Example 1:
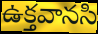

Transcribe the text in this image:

ఉక్తవానసి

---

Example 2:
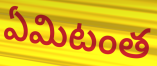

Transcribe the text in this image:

ఏమిటంత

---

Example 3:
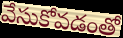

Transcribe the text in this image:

వేసుకోవడంతో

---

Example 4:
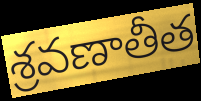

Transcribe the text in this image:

శ్రవణాతీత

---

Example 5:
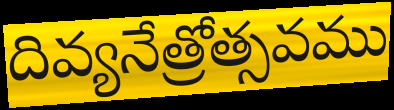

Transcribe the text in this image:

దివ్యనేత్రోత్సవము